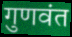
गुणवंत